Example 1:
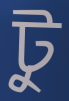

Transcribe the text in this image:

টু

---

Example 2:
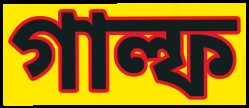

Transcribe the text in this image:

গাল্ফ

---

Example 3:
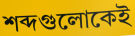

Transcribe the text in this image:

শব্দগুলোকেই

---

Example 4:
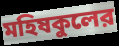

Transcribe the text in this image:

মহিষকুলের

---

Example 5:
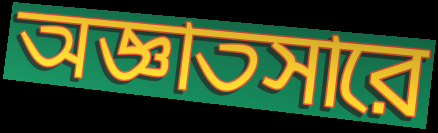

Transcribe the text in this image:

অজ্ঞাতসারে